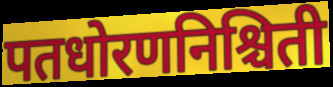
पतधोरणनिश्चिती